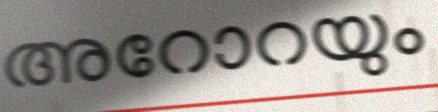
അറോറയും